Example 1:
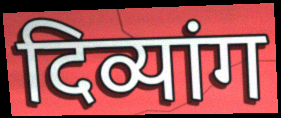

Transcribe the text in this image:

दिव्यांग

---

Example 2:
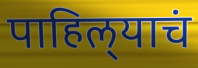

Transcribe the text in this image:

पाहिल्याचं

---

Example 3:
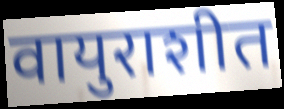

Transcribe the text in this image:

वायुराशीत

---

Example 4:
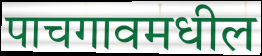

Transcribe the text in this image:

पाचगावमधील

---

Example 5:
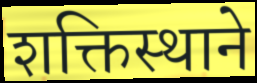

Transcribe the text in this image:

शक्तिस्थाने